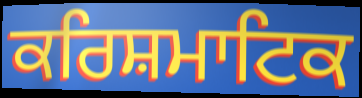
ਕਰਿਸ਼ਮਾਟਿਕ